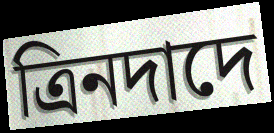
ত্রিনদাদে